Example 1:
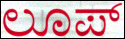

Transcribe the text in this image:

ಲೂಪ್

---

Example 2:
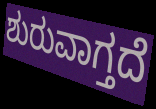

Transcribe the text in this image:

ಶುರುವಾಗ್ತದೆ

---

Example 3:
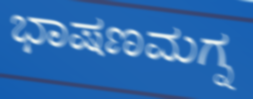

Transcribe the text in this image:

ಭಾಷಣಮಗ್ನ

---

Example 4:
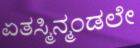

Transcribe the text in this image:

ಏತಸ್ಮಿನ್ಮಂಡಲೇ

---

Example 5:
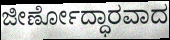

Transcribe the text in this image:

ಜೀರ್ಣೋದ್ಧಾರವಾದ